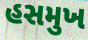
હસમુખ